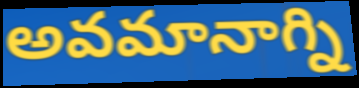
అవమానాగ్ని